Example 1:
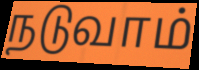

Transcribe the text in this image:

நடுவாம்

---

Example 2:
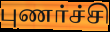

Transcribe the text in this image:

புணர்ச்சி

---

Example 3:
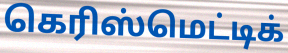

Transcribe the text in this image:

கெரிஸ்மெட்டிக்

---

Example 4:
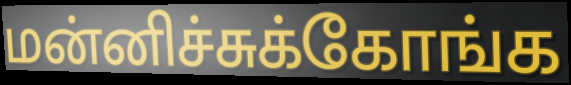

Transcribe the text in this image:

மன்னிச்சுக்கோங்க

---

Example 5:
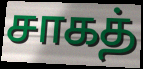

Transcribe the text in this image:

சாகத்